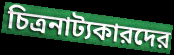
চিত্রনাট্যকারদের